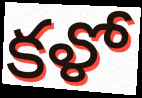
కళో